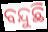
ବନ୍ଦୁଛି